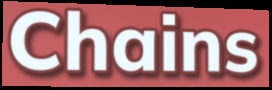
Chains